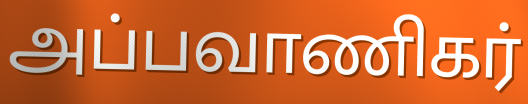
அப்பவாணிகர்